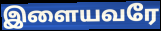
இளையவரே